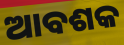
ଆବଶକ